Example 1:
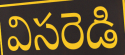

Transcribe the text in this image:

విసరెడి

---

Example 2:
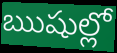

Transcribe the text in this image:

ఋషుల్లో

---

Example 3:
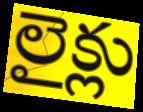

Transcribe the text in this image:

లైక్లు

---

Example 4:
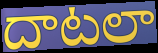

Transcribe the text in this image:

దాటలా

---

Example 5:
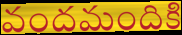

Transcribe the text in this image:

వందమందికి